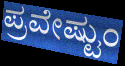
ಪ್ರವೇಷ್ಟುಂ